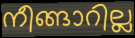
നീങ്ങാറില്ല